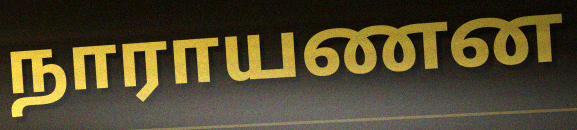
நாராயணன